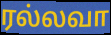
ரல்லவா